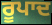
ਰੂਪਾਦ